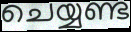
ചെയ്യണ്ട